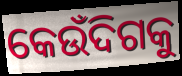
କେଉଁଦିଗକୁ